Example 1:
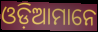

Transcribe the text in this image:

ଓଡ଼ିଆମାନେ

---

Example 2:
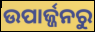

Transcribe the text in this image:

ଉପାର୍ଜ୍ଜନରୁ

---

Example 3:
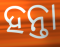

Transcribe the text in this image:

ହନ୍ତା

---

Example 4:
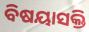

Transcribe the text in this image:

ବିଷୟାସକ୍ତି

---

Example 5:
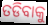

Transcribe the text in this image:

ତଡିବାକୁ